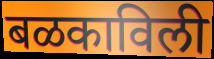
बळकाविली